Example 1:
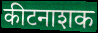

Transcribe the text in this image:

कीटनाशक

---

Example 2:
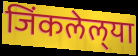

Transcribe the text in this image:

जिंकलेल्या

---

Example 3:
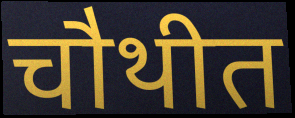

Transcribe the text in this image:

चौथीत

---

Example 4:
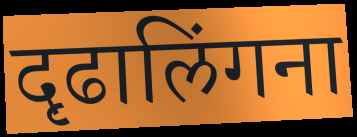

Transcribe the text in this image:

दृढालिंगना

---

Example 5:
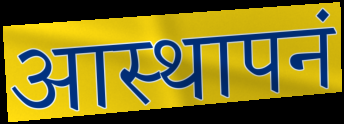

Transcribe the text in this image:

आस्थापनं